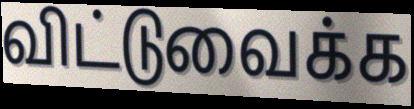
விட்டுவைக்க